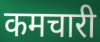
कमचारी